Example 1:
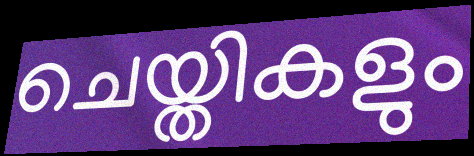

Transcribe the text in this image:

ചെയ്തികളും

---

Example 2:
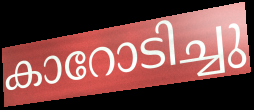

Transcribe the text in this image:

കാറോടിച്ചു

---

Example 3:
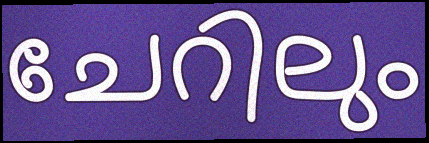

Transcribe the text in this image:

ചേറിലും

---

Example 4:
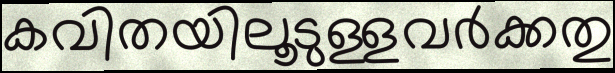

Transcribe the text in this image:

കവിതയിലൂടുള്ളവർക്കതു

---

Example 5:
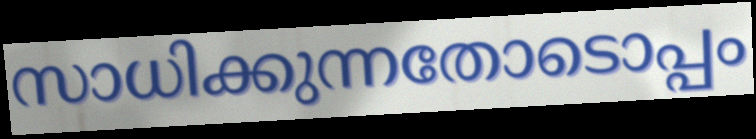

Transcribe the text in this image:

സാധിക്കുന്നതോടൊപ്പം